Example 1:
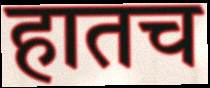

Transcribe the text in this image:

हातच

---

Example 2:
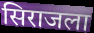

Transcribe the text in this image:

सिराजला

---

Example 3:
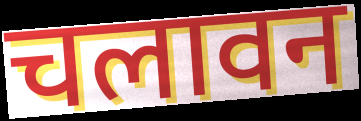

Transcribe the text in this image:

चलावन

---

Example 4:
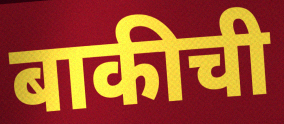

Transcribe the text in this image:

बाकीची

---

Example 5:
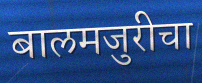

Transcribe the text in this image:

बालमजुरीचा